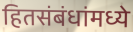
हितसंबंधांमध्ये